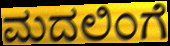
ಮದಲಿಂಗೆ